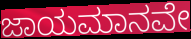
ಜಾಯಮಾನವೇ